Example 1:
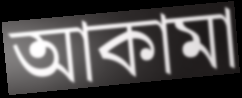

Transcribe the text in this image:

আকামা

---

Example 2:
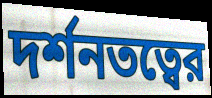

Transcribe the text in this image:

দর্শনতত্বের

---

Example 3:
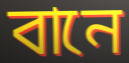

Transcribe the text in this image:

বানে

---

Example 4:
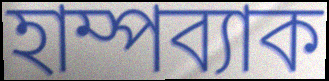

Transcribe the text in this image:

হাম্পব্যাক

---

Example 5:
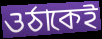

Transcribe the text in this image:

ওঠাকেই